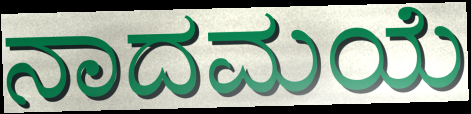
ನಾದಮಯೆ